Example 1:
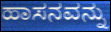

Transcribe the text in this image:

ಹಾಸನವನ್ನು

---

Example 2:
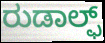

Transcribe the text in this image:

ರುಡಾಲ್ಫ್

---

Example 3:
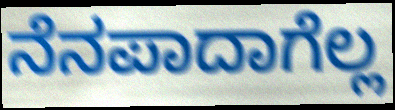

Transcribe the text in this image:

ನೆನಪಾದಾಗೆಲ್ಲ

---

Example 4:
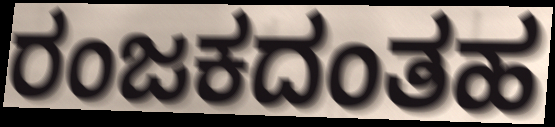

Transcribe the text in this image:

ರಂಜಕದಂತಹ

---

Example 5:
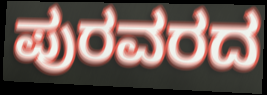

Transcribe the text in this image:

ಪುರವರದ